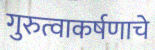
गुरुत्वाकर्षणाचे